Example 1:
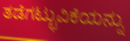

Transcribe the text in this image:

ತಡೆಗಟ್ಟುವಿಕೆಯನ್ನು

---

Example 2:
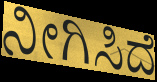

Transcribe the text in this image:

ನೀಗಿಸಿದೆ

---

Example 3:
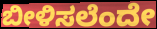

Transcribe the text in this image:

ಬೀಳಿಸಲೆಂದೇ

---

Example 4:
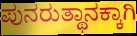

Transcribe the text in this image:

ಪುನರುತ್ಥಾನಕ್ಕಾಗಿ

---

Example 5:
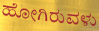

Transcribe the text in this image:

ಹೋಗಿರುವಳು